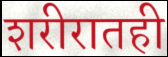
शरीरातही